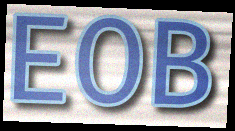
EOB